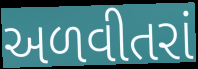
અળવીતરાં